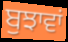
ਬੁਝਾਵਾਂ